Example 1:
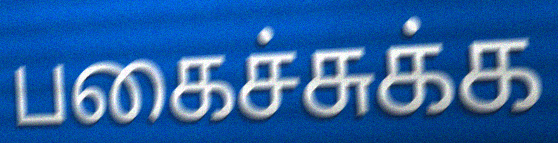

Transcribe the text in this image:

பகைச்சுக்க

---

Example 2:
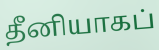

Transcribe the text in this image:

தீனியாகப்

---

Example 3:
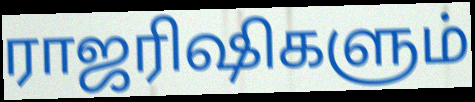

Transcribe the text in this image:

ராஜரிஷிகளும்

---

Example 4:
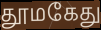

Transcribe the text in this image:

தூமகேது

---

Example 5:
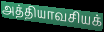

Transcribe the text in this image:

அத்தியாவசியக்